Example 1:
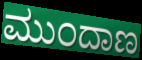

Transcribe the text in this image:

ಮುಂದಾಣ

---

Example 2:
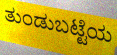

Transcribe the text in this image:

ತುಂಡುಬಟ್ಟೆಯ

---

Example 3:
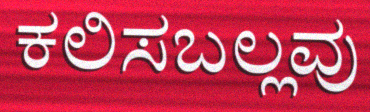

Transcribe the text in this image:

ಕಲಿಸಬಲ್ಲವು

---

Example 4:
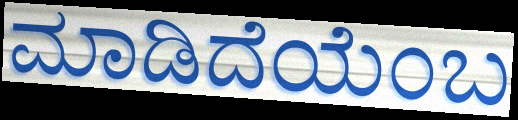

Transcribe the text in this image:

ಮಾಡಿದೆಯೆಂಬ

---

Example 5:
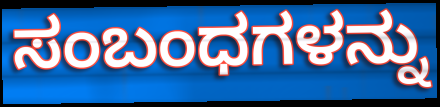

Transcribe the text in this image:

ಸಂಬಂಧಗಳನ್ನು